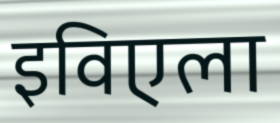
इविएला